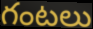
గంటలు